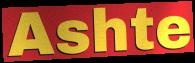
Ashte